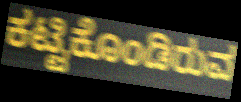
ಕಟ್ಟಿಕೊಂಡಿರುವ